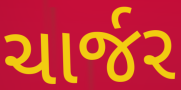
ચાર્જર